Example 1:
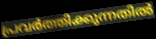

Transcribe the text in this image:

പ്രവർത്തിക്കുന്നതിൽ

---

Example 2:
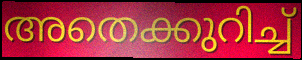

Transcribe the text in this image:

അതെക്കുറിച്ച്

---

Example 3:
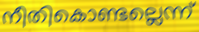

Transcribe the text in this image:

നീതികൊണ്ടല്ലെന്ന്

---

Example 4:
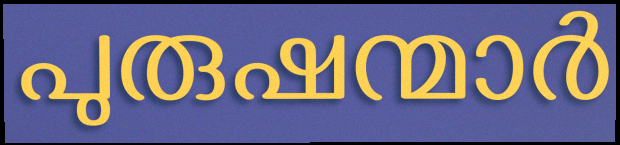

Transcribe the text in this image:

പുരുഷന്മാർ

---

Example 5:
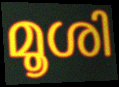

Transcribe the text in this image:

മൂശി